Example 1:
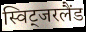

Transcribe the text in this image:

स्विट्जरलैंड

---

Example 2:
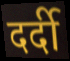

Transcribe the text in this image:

दर्दी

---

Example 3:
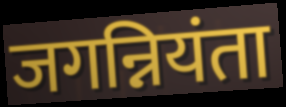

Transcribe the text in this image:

जगन्नियंता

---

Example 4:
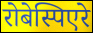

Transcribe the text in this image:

रोबेस्पिएरे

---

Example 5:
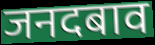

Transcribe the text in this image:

जनदबाव